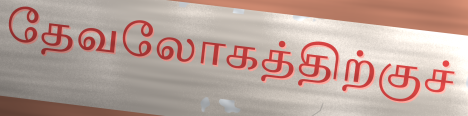
தேவலோகத்திற்குச்